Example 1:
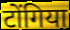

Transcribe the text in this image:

टोंगिया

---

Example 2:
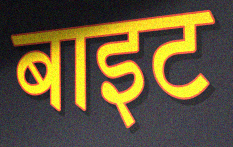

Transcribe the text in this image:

बाइट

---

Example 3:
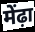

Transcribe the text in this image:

मेंढ़ा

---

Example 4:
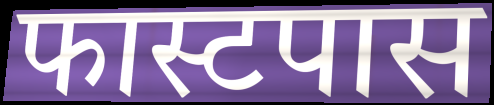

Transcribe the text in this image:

फास्टपास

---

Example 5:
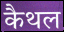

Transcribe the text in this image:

कैथल